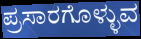
ಪ್ರಸಾರಗೊಳ್ಳುವ